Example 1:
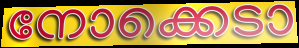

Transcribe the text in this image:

നോക്കെടാ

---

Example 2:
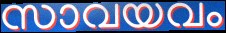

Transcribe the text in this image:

സാവയവം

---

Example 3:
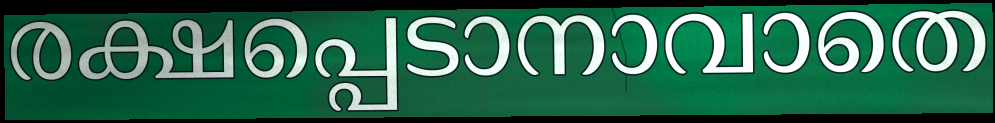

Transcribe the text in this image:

രക്ഷപ്പെടാനാവാതെ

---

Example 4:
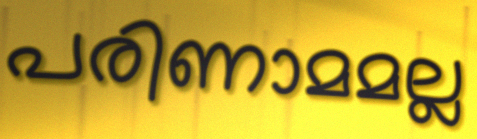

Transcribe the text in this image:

പരിണാമമല്ല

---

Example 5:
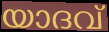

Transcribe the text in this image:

യാദവ്